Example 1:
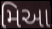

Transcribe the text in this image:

મિઆ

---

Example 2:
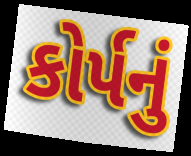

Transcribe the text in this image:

કોર્પનું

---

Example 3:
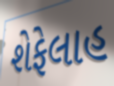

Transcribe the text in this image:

શેફેલાહ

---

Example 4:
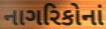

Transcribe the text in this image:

નાગરિકોનાં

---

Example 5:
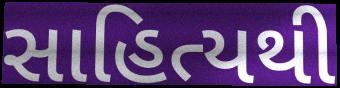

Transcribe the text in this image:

સાહિત્યથી